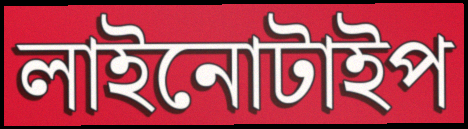
লাইনোটাইপ